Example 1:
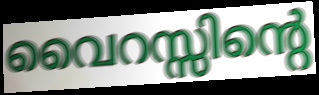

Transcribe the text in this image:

വൈറസ്സിന്റെ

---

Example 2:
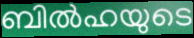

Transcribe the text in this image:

ബിൽഹയുടെ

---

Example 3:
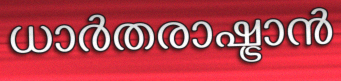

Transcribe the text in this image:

ധാർതരാഷ്ട്രാൻ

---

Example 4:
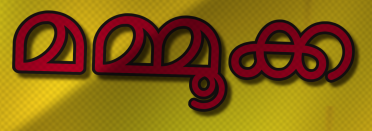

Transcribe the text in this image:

മമ്മൂക്ക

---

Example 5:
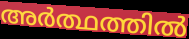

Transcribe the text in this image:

അർത്ഥത്തിൽ